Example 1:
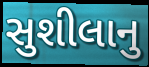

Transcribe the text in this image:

સુશીલાનુ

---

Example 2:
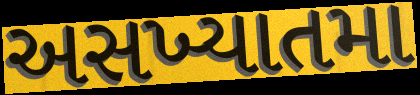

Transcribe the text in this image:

અસખ્યાતમા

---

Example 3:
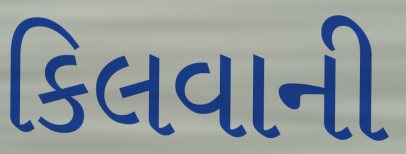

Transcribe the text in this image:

કિલવાની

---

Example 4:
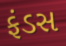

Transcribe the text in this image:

ફંડસ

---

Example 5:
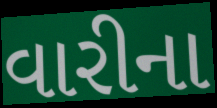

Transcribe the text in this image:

વારીના